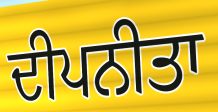
ਦੀਪਨੀਤਾ